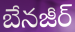
బేనజీర్